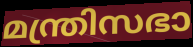
മന്ത്രിസഭാ